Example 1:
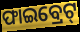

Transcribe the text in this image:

ଫାଇବ୍ରେଟ୍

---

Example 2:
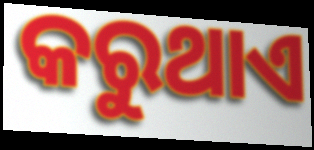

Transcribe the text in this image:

କରୁଥାଏ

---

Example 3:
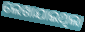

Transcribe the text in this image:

ଲେଖାଯାଇଥିଲା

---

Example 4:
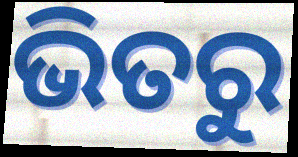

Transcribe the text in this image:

ଭିତରୁ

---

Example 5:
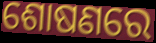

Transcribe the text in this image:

ଶୋଷଣରେ